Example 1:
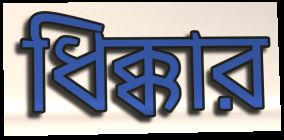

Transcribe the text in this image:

ধিক্কার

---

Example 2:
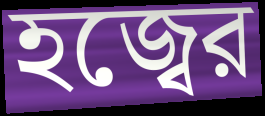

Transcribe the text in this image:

হজ্বের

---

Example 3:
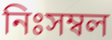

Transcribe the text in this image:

নিঃসম্বল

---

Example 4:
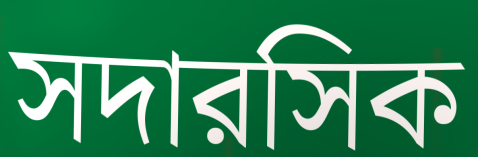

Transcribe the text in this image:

সদারসিক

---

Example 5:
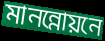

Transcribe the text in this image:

মানন্নোয়নে